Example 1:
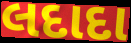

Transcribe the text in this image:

લદાદા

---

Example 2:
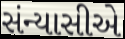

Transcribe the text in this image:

સંન્યાસીએ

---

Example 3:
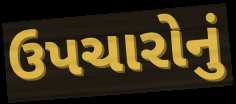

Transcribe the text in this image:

ઉપચારોનું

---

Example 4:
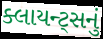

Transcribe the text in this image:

ક્લાયન્ટ્સનું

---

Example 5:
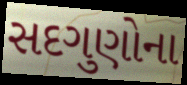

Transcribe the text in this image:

સદગુણોના